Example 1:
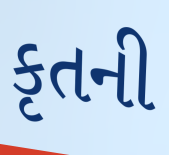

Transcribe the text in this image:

કૃતની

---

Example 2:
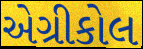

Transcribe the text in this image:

એગ્રીકોલ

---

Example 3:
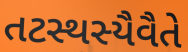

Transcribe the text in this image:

તટસ્થસ્યૈવૈતે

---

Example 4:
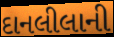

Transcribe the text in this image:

દાનલીલાની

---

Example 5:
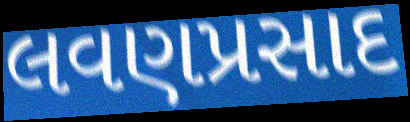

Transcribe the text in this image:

લવણપ્રસાદ